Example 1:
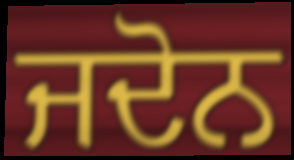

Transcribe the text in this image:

ਜਦੋਨ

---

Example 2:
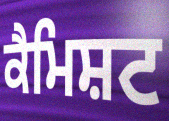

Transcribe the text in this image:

ਕੈਮਿਸ਼ਟ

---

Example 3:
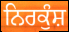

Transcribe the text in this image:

ਨਿਰਕੁੰਸ਼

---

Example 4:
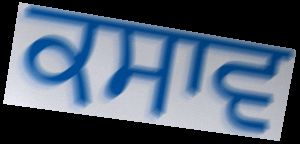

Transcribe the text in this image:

ਕਸਾਵ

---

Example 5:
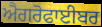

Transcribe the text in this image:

ਐਗਰੋਫਾਈਬਰ